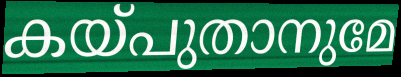
കയ്പുതാനുമേ